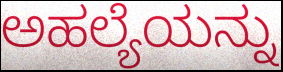
ಅಹಲ್ಯೆಯನ್ನು